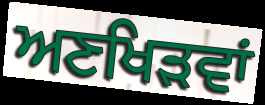
ਅਣਖਿੜਵਾਂ